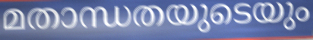
മതാന്ധതയുടെയും